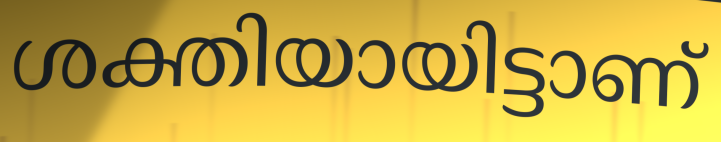
ശക്തിയായിട്ടാണ്